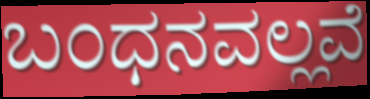
ಬಂಧನವಲ್ಲವೆ